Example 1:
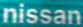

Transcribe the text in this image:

nissan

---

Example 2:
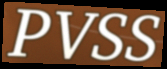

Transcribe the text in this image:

PVSS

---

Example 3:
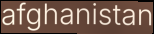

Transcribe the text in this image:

afghanistan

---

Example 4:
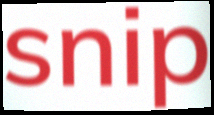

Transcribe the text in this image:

snip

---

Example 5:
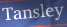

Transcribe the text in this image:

Tansley